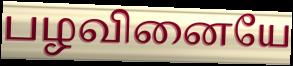
பழவினையே